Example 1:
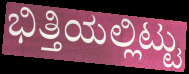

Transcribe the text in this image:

ಭಿತ್ತಿಯಲ್ಲಿಟ್ಟು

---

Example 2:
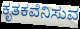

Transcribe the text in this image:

ಕೃತಕವೆನಿಸುವ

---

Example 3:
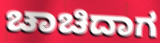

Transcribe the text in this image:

ಚಾಚಿದಾಗ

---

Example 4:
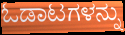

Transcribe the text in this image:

ಓಡಾಟಗಳನ್ನು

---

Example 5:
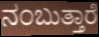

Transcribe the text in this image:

ನಂಬುತ್ತಾರೆ